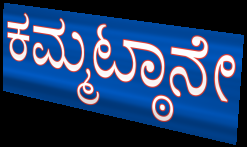
ಕಮ್ಮಟ್ಠಾನೇ